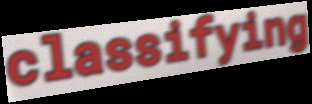
classifying